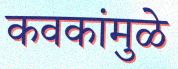
कवकांमुळे